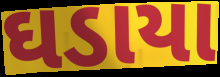
ઘડાયા